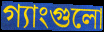
গ্যাংগুলো